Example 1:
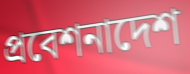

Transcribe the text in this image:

প্রবেশনাদেশ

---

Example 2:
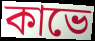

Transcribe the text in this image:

কাভে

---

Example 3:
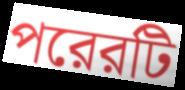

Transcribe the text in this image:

পরেরটি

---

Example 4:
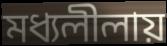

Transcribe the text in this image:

মধ্যলীলায়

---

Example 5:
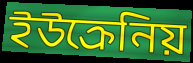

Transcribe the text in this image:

ইউক্রেনিয়